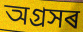
অগ্ৰসৰ